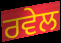
ਰਵੇਲ